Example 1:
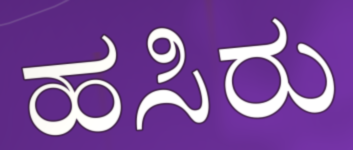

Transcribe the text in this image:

ಹಸಿರು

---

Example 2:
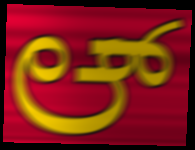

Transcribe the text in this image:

ಆ್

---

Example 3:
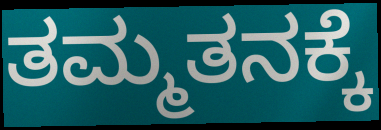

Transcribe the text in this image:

ತಮ್ಮತನಕ್ಕೆ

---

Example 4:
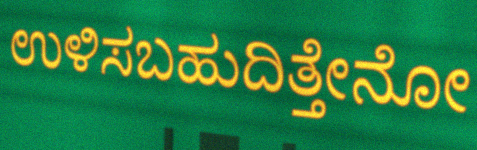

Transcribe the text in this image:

ಉಳಿಸಬಹುದಿತ್ತೇನೋ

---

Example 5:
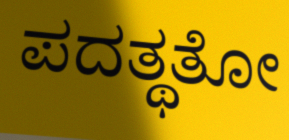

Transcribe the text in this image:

ಪದತ್ಥತೋ